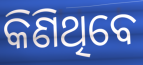
କିଣିଥିବେ